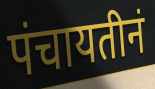
पंचायतीनं